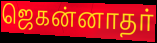
ஜெகன்னாதர்